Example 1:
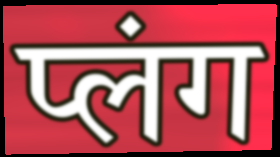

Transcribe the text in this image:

प्लंग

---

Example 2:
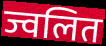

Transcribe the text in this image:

ज्वलित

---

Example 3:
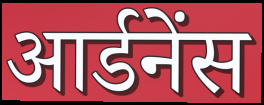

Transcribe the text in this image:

आर्डनेंस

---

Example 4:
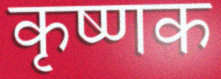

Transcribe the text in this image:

कृष्णक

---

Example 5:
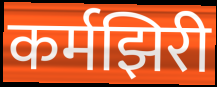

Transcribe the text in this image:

कर्मझिरी